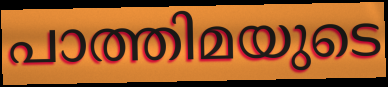
പാത്തിമയുടെ